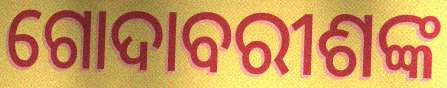
ଗୋଦାବରୀଶଙ୍କ